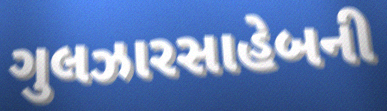
ગુલઝારસાહેબની